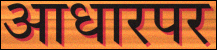
आधारपर